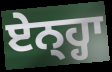
ਏਨ੍ਹ੍ਹਾ